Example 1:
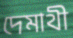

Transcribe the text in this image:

দেমাথী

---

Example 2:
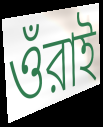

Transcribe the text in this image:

ওঁরাই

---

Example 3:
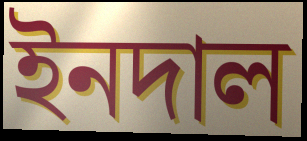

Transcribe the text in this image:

ইনদাল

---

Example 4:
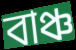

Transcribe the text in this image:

বাঞ্চ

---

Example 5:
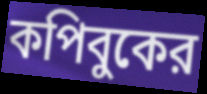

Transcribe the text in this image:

কপিবুকের